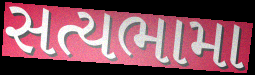
સત્યભામા